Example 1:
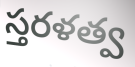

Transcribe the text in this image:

స్తరళత్వ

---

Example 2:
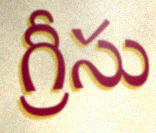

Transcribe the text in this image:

గ్రీసు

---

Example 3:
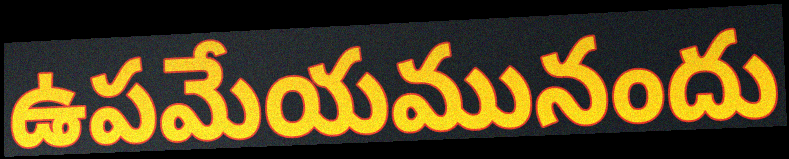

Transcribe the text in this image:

ఉపమేయమునందు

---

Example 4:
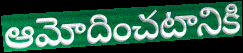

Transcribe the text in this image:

ఆమోదించటానికి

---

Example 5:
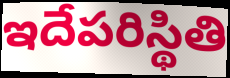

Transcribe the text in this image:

ఇదేపరిస్థితి